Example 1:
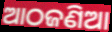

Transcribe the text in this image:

ଆଠଜଣିଆ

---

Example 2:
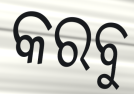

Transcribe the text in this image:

କରବୁ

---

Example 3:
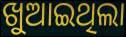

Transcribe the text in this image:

ଖୁଆଇଥିଲା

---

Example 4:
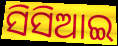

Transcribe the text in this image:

ସିସିଆଇ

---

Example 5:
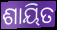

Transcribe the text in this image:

ଶାୟିତ